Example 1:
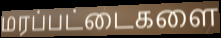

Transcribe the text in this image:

மரப்பட்டைகளை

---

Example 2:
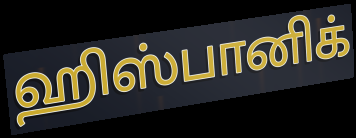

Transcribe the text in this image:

ஹிஸ்பானிக்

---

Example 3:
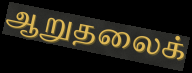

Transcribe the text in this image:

ஆறுதலைக்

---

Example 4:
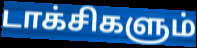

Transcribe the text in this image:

டாக்சிகளும்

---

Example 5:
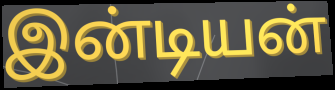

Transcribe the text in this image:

இன்டியன்